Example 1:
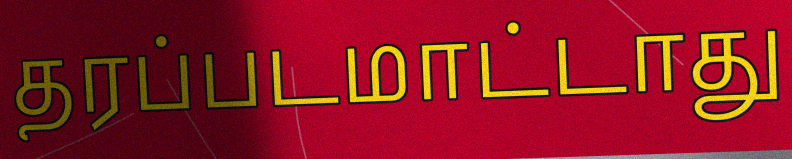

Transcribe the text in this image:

தரப்படமாட்டாது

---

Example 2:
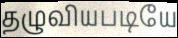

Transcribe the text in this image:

தழுவியபடியே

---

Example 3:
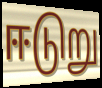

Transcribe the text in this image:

ஈடுறு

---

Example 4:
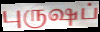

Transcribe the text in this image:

புருஷப்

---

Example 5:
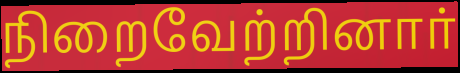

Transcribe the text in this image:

நிறைவேற்றினார்